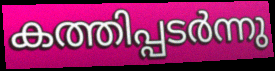
കത്തിപ്പടർന്നു